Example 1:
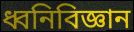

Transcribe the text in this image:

ধ্বনিবিজ্ঞান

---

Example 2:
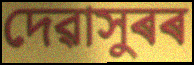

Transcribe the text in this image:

দেৱাসুৰৰ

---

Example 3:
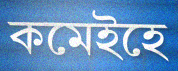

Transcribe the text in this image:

কমেইহে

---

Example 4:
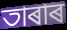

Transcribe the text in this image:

তাৰাৰ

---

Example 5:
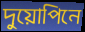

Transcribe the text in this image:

দুয়োপিনে